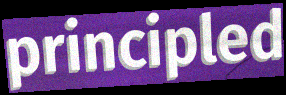
principled